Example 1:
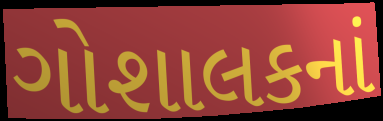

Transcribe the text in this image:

ગોશાલકનાં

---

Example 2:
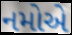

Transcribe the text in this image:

નમોએ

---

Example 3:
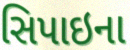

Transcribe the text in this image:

સિપાઇના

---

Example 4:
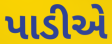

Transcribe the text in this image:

પાડીએ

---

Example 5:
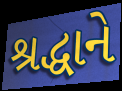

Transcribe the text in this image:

શ્રદ્ધાને